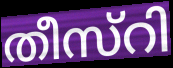
തീസ്റി